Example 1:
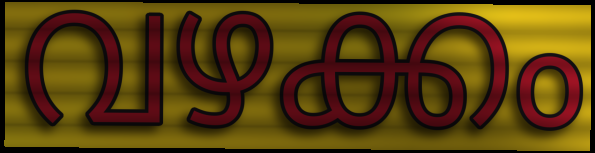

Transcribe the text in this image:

വഴക്കം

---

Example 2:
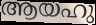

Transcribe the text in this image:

ആയഹു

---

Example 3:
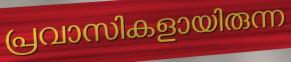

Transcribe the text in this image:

പ്രവാസികളായിരുന്ന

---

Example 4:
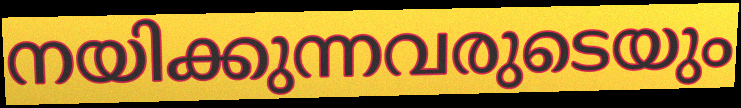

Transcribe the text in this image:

നയിക്കുന്നവരുടെയും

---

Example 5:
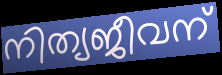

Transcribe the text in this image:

നിത്യജീവന്